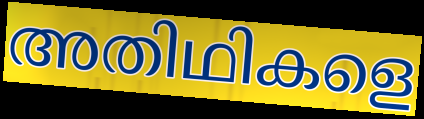
അതിഥികളെ